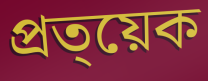
প্ৰত্য়েক